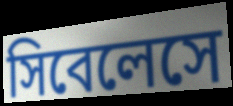
সিবেলেসে